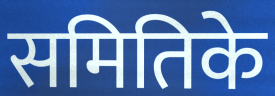
समितिके